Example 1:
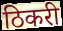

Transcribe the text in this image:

ठिकरी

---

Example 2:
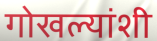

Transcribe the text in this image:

गोखल्यांशी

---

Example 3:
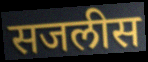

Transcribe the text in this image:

सजलीस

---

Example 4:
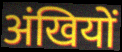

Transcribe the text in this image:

अंखियों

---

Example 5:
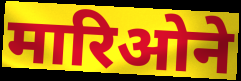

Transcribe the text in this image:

मारिओने